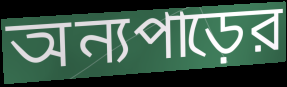
অন্যপাড়ের